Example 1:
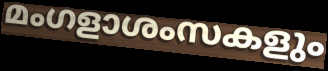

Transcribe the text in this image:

മംഗളാശംസകളും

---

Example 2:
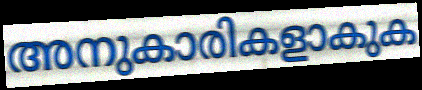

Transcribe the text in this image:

അനുകാരികളാകുക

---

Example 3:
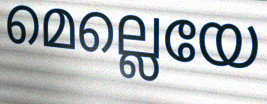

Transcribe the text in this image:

മെല്ലെയേ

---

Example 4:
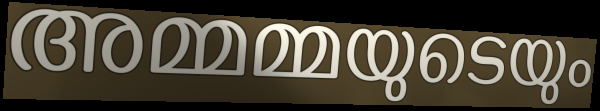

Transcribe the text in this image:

അമ്മമ്മയുടെയും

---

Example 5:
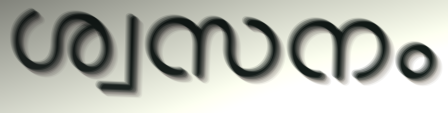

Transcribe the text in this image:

ശ്വസനം